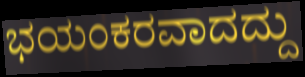
ಭಯಂಕರವಾದದ್ದು